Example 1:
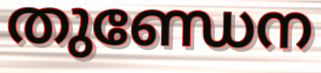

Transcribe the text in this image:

തുണ്ഡേന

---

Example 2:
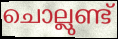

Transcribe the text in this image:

ചൊല്ലുണ്ട്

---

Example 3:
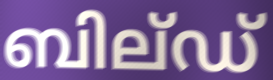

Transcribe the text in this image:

ബില്ഡ്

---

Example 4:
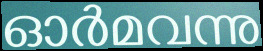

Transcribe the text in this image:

ഓർമവന്നു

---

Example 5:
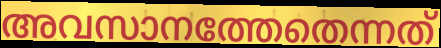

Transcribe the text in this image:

അവസാനത്തേതെന്നത്